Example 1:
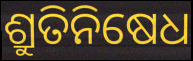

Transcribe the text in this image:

ଶ୍ରୁତିନିଷେଧ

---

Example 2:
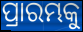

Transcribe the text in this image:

ପ୍ରାରମ୍ଭକୁ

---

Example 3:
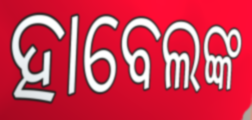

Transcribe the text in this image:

ହାବେଲଙ୍କ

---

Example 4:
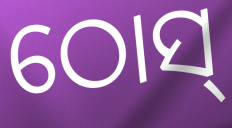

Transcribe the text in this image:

ଠୋସ୍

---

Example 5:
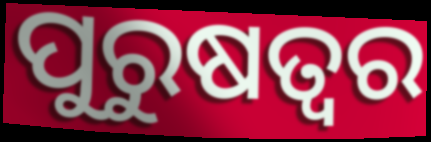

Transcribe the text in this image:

ପୁରୁଷତ୍ଵର